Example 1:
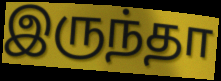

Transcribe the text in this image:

இருந்தா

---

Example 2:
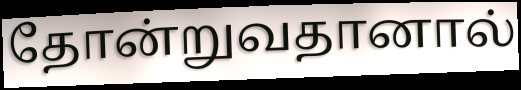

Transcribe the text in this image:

தோன்றுவதானால்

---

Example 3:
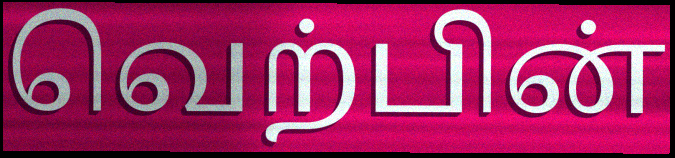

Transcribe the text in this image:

வெற்பின்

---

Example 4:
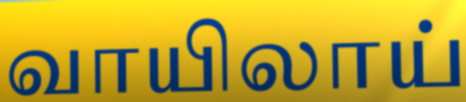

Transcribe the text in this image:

வாயிலாய்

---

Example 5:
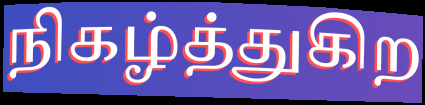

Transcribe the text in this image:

நிகழ்த்துகிற